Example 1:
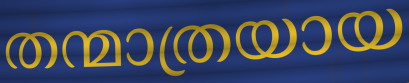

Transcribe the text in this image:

തന്മാത്രയായ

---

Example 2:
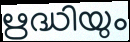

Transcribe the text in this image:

ഋദ്ധിയും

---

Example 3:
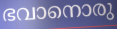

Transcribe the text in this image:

ഭവാനൊരു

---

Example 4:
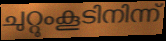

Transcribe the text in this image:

ചുറ്റുംകൂടിനിന്ന്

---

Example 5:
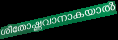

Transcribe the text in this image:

ശീതോഷ്ണവാനാകയാൽ